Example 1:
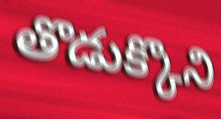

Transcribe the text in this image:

తొడుక్కొని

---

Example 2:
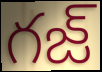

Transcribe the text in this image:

గజ్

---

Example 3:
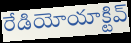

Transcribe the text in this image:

రేడియోయాక్టివ్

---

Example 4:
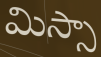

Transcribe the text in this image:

మిస్సా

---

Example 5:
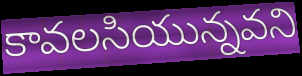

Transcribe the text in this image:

కావలసియున్నవని